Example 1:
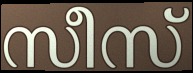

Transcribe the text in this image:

സീസ്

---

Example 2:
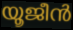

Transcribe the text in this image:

യൂജീൻ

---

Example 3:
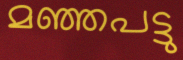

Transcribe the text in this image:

മഞ്ഞപട്ടു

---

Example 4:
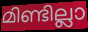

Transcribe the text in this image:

മിണ്ടില്ലാ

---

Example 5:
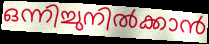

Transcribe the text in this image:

ഒന്നിച്ചുനിൽക്കാൻ